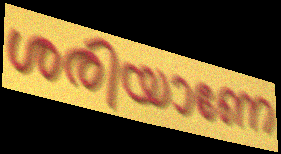
ശരിയാണേ